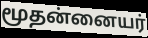
மூதன்னையர்